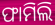
ଫାମିଲି